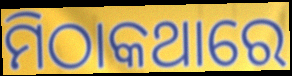
ମିଠାକଥାରେ